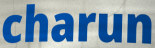
charun